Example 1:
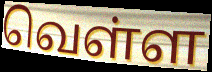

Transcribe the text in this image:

வெள்ள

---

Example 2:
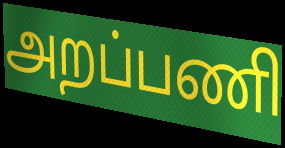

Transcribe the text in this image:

அறப்பணி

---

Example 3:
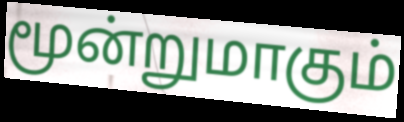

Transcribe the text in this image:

மூன்றுமாகும்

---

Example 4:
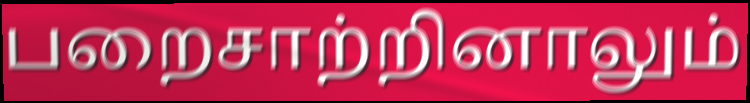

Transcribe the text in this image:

பறைசாற்றினாலும்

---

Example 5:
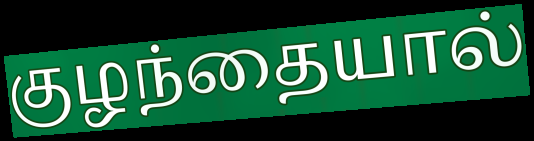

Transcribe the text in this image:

குழந்தையால்